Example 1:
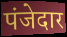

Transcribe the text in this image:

पंजेदार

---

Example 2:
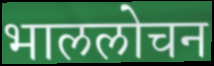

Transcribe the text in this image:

भाललोचन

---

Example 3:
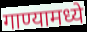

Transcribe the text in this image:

गाण्यामध्ये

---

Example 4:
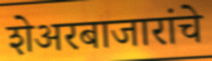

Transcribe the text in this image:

शेअरबाजारांचे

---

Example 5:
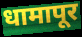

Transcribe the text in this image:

धामापूर